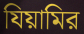
যিয়ামির